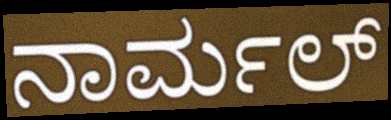
ನಾರ್ಮಲ್